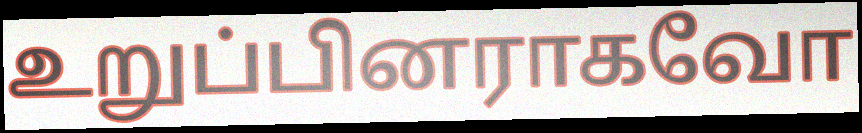
உறுப்பினராகவோ